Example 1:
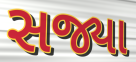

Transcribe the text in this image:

સજ્યા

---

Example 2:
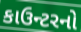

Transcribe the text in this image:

કાઉન્ટરનો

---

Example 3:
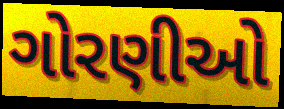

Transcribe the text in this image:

ગોરણીઓ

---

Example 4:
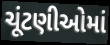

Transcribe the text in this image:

ચૂંટણીઓમાં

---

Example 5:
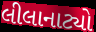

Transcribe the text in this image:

લીલાનાટ્યો